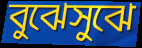
বুঝেসুঝে